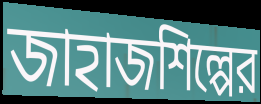
জাহাজশিল্পের